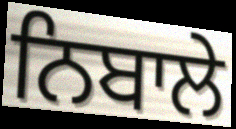
ਨਿਬਾਲੇ